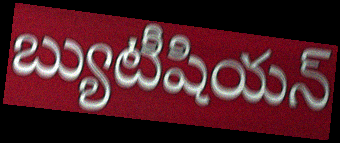
బ్యుటీషియన్